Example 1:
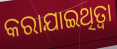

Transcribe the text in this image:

କରାଯାଇଥିତ୍ବା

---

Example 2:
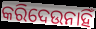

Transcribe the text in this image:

କରିଦେଉନାହିଁ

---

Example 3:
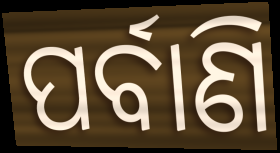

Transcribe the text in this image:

ପର୍ବାଣି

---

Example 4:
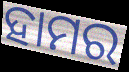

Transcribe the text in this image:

ହାମର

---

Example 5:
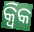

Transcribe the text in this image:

କ୍ୱିକ